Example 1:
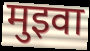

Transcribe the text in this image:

मुइवा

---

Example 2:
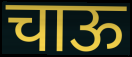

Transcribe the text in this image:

चाऊ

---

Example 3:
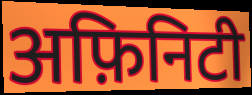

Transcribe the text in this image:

अफ़िनिटी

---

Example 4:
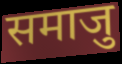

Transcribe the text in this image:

समाजु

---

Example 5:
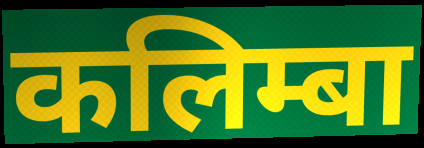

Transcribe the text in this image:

कलिम्बा